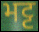
भट्ट